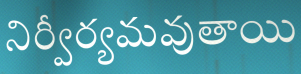
నిర్వీర్యమవుతాయి